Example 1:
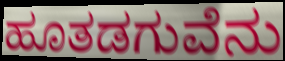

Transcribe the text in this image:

ಹೂತಡಗುವೆನು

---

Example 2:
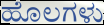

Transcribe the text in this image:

ಹೊಲಗಳು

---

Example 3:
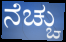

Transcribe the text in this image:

ನೆಚ್ಚು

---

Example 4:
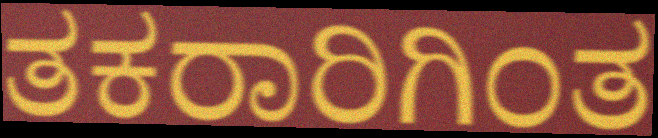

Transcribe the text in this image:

ತಕರಾರಿಗಿಂತ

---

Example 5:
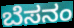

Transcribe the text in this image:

ಬೆಸನಂ